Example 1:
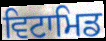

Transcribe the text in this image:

ਵਿਟਾਮਿਡ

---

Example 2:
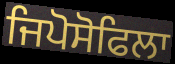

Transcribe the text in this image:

ਜਿਪੋਸੋਫਿਲਾ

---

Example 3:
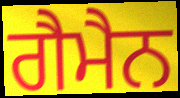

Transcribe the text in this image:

ਗੈਮੈਨ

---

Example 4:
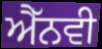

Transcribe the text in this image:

ਐੱਨਵੀ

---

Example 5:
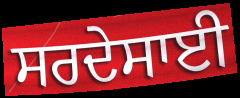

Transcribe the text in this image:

ਸਰਦੇਸਾਈ